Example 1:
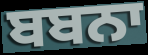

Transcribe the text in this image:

ਬਬਨਾ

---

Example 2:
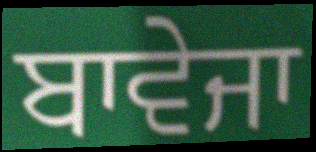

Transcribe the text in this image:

ਬਾਵੇਜਾ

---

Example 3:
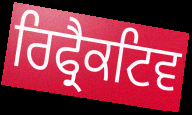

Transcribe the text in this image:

ਰਿਫ੍ਰੈਕਟਿਵ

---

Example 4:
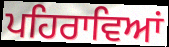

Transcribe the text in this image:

ਪਹਿਰਾਵਿਆਂ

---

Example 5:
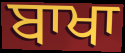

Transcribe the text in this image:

ਬਾਖਾ